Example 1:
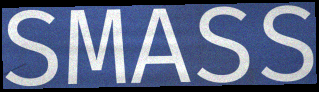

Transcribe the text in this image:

SMASS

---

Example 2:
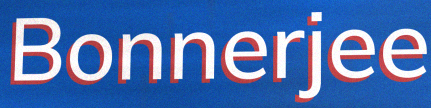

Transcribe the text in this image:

Bonnerjee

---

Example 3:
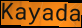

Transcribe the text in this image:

Kayada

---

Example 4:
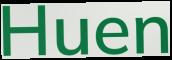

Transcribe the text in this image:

Huen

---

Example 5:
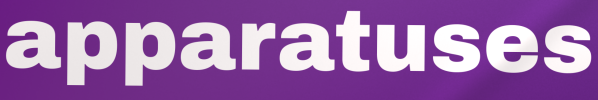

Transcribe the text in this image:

apparatuses